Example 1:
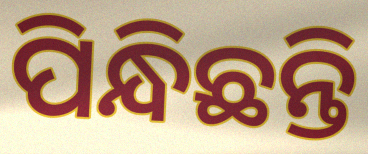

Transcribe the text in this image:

ପିନ୍ଧିଛନ୍ତି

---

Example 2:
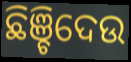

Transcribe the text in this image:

ଛିଞ୍ଚିଦେଉ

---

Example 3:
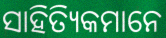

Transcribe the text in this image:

ସାହିତ୍ୟିକମାନେ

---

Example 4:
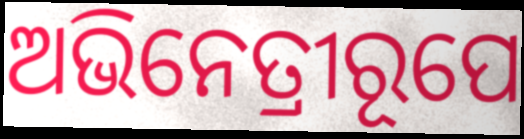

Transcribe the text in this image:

ଅଭିନେତ୍ରୀରୂପେ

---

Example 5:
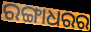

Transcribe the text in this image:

ରଙ୍ଗାଧରର